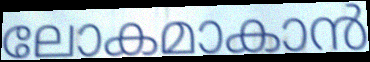
ലോകമാകാൻ